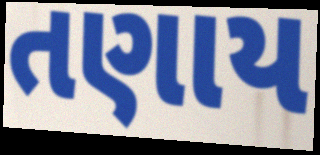
તણાય